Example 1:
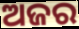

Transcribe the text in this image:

ଅଜର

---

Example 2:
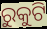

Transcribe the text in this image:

ରୁକୁଟି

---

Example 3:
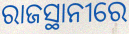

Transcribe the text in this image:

ରାଜସ୍ଥାନୀରେ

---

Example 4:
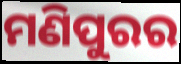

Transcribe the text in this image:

ମଣିପୁରର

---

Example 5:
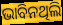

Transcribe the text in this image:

ଭାବିନଥିଲି